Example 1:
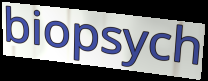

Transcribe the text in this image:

biopsych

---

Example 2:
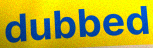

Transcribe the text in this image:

dubbed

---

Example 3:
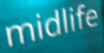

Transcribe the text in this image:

midlife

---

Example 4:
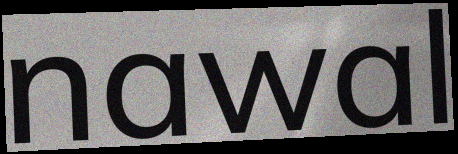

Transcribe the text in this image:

nawal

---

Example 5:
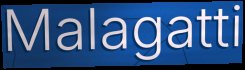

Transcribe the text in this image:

Malagatti